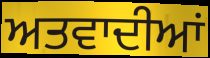
ਅਤਵਾਦੀਆਂ